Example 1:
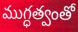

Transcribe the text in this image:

ముగ్ధత్వంతో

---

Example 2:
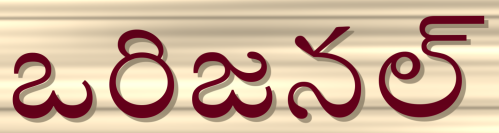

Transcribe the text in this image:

ఒరిజనల్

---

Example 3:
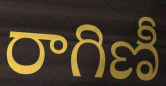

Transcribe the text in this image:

రాగిణీ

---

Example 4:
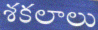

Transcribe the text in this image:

శకలాలు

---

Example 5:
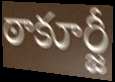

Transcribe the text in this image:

ఠాకూర్జీ